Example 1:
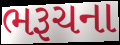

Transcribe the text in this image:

ભરૂચના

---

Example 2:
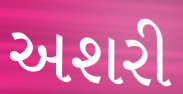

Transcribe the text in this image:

અશરી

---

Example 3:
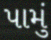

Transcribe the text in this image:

પામું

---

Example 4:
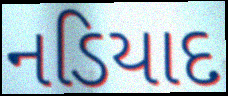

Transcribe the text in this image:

નડિયાદ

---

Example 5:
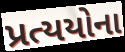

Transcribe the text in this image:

પ્રત્યયોના